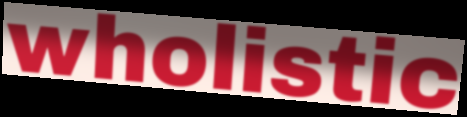
wholistic